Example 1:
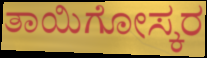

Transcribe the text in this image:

ತಾಯಿಗೋಸ್ಕರ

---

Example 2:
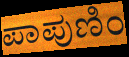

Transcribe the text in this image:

ಪಾಪುಣಿಂ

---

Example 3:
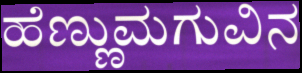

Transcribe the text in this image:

ಹೆಣ್ಣುಮಗುವಿನ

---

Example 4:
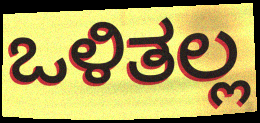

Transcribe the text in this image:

ಒಳಿತಲ್ಲ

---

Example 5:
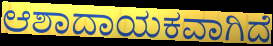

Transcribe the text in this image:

ಆಶಾದಾಯಕವಾಗಿದೆ